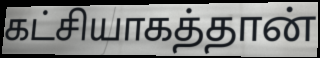
கட்சியாகத்தான்